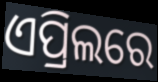
ଏପ୍ରିଲରେ